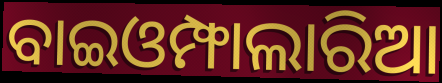
ବାଇଓମ୍ଫାଲାରିଆ